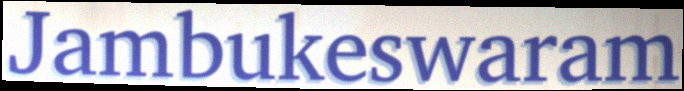
Jambukeswaram